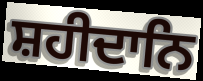
ਸ਼ਹੀਦਾਨਿ